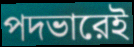
পদভারেই